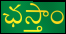
ఛస్తాం